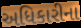
અધિકારીના